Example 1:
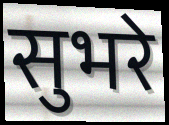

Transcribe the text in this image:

सुभरे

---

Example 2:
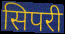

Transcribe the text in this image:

सिपरी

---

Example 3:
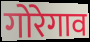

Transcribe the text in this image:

गोरेगाव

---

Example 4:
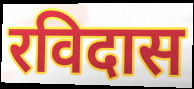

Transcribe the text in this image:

रविदास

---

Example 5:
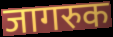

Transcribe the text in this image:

जागरुक